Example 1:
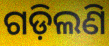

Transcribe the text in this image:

ଗଡ଼ିଲଣି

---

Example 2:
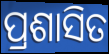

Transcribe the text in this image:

ପ୍ରଶାସିତ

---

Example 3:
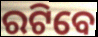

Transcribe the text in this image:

ରଟିବେ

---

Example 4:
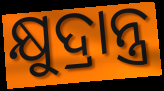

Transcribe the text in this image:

କ୍ଷୁଦ୍ରାନ୍ତ୍ର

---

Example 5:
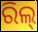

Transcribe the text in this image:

ରିଲ୍